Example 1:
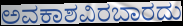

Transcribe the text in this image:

ಅವಕಾಶವಿರಬಾರದು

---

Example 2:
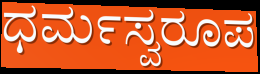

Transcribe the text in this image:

ಧರ್ಮಸ್ವರೂಪ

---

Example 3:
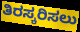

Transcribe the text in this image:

ತಿರಸ್ಕರಿಸಲು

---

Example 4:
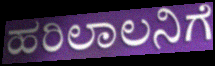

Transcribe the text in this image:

ಹರಿಲಾಲನಿಗೆ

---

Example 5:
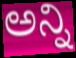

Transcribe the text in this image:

ಅನ್ನಿ